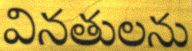
వినతులను